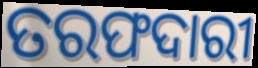
ତରଫଦାରୀ